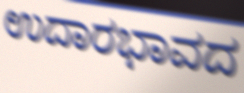
ಉದಾರಭಾವದ